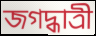
জগদ্ধাত্রী